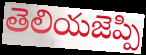
తెలియజెప్పి